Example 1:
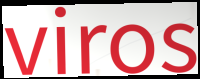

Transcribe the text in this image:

viros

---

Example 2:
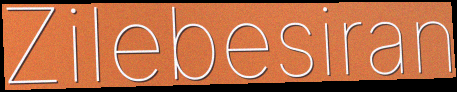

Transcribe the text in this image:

Zilebesiran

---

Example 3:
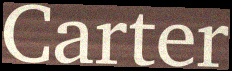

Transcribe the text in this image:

Carter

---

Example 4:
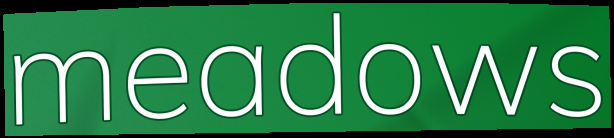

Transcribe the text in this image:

meadows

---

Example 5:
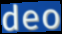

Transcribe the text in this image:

deo